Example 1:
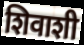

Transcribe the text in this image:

शिवाशी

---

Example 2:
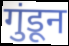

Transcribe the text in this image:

गुंडून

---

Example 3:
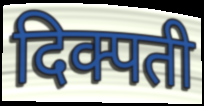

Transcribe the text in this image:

दिक्पती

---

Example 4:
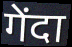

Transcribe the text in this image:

गेंदा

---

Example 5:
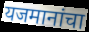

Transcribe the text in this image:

यजमानांचा